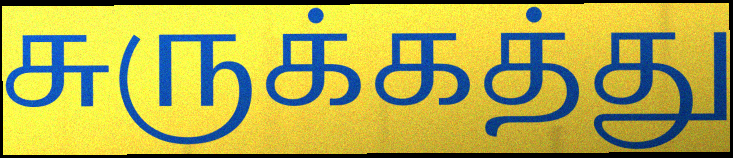
சுருக்கத்து